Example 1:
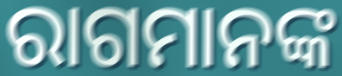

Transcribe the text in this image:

ରାଗମାନଙ୍କ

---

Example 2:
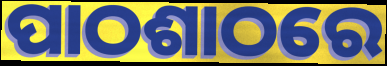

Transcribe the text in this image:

ପାଠଶାଠରେ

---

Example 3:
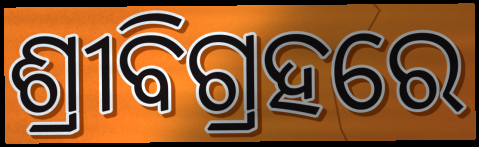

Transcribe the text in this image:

ଶ୍ରୀବିଗ୍ରହରେ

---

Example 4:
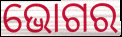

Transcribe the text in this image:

ଭୋଗର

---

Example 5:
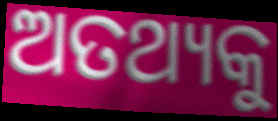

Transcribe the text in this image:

ଅତଥ୍ୟକୁ